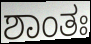
ಶಾಂತಃ